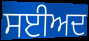
ਸਈਅਦ